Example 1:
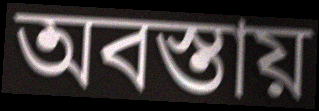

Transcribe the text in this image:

অবস্তায়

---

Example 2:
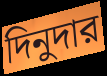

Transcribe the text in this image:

দিনুদার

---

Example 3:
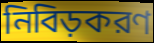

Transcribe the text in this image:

নিবিড়করণ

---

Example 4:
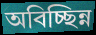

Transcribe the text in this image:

অবিচ্ছিন্ন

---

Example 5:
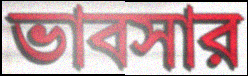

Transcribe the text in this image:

ভাবসার